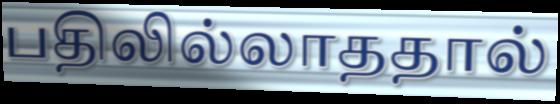
பதிலில்லாததால்